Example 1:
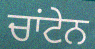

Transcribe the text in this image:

ਚਾਂਟੇਨ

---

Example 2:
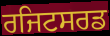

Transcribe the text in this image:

ਰਜਿਟਸਰਡ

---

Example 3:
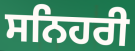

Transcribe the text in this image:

ਸਨਿਹਰੀ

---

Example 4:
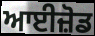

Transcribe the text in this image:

ਆਈਜ਼ੋਡ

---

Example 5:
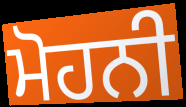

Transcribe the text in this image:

ਮੋਹਨੀ